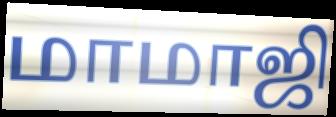
மாமாஜி